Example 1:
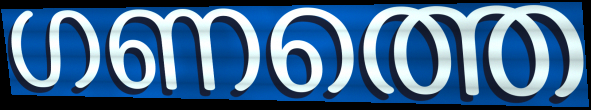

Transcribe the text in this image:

ഗണത്തെ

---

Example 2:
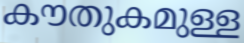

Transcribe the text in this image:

കൗതുകമുള്ള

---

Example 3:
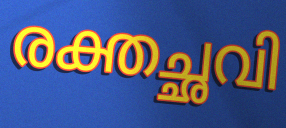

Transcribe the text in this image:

രക്തച്ഛവി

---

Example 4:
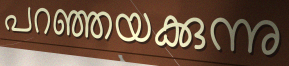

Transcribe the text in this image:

പറഞ്ഞയക്കുന്നു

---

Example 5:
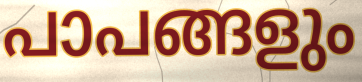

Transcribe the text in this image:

പാപങ്ങളും